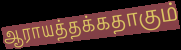
ஆராயத்தக்கதாகும்